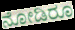
ನೋಡಿರೂ